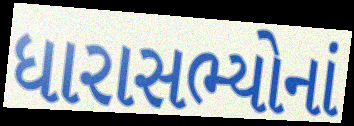
ધારાસભ્યોનાં